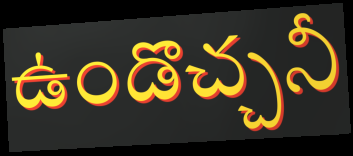
ఉండొచ్చనీ